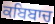
ਕਬਿਬਾਚ